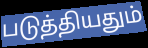
படுத்தியதும்